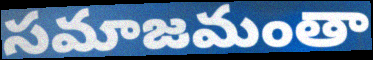
సమాజమంతా